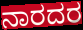
ನಾರದರ